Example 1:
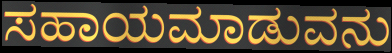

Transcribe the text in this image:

ಸಹಾಯಮಾಡುವನು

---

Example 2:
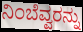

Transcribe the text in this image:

ನಿಂಬೆವ್ವರನ್ನು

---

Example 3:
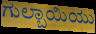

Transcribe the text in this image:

ಗುಲ್ಬಾಯಿಯು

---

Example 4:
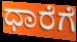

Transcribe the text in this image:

ಧಾರೆಗೆ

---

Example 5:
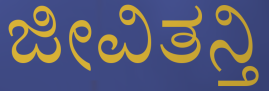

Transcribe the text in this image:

ಜೀವಿತನ್ತಿ